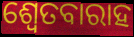
ଶ୍ଵେତବାରାହ